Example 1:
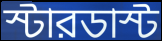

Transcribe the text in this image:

স্টারডাস্ট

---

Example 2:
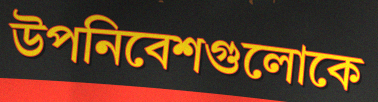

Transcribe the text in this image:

উপনিবেশগুলোকে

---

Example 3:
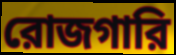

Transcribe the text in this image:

রোজগারি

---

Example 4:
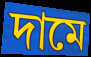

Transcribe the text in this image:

দামে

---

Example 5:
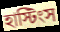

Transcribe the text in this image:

হাস্টিংস